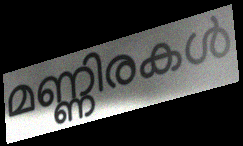
മണ്ണിരകൾ